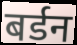
बर्डन